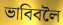
ভাবিবলৈ